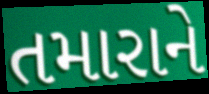
તમારાને